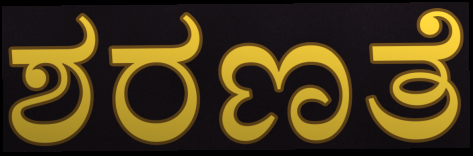
ಶರಣತೆ